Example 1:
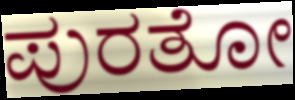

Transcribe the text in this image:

ಪುರತೋ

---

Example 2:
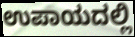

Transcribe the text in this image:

ಉಪಾಯದಲ್ಲಿ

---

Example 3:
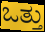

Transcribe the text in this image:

ಒತ್ತು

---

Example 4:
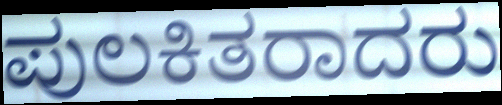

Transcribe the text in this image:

ಪುಲಕಿತರಾದರು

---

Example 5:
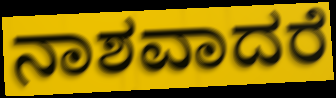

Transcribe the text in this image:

ನಾಶವಾದರೆ